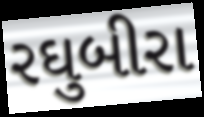
રઘુબીરા